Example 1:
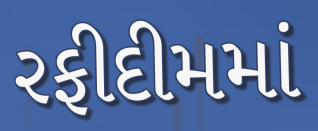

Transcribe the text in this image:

રફીદીમમાં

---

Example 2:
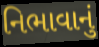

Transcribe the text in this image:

નિભાવાનું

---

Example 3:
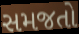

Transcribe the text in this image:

સમજતો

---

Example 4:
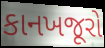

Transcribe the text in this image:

કાનખજૂરો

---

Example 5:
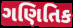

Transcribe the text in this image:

ગણિતિક